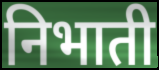
निभाती